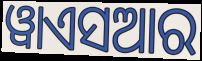
ୱାଏସଆର